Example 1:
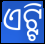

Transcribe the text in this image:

ଏଟ୍ଟି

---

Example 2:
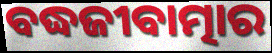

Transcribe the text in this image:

ବଦ୍ଧଜୀବାତ୍ମାର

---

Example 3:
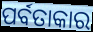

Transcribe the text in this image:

ପର୍ବତାକାର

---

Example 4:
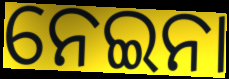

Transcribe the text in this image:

ନେଇନା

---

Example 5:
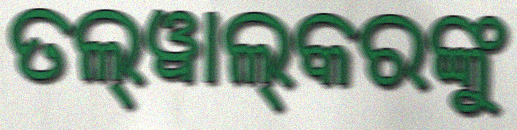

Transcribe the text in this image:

ତଲ୍‌ୱାଲ୍‌କରଙ୍କୁ